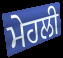
ਮੇਹਲੀ